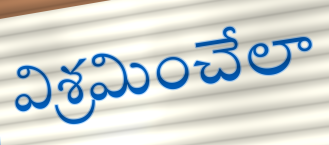
విశ్రమించేలా